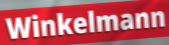
Winkelmann